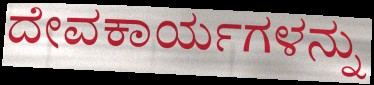
ದೇವಕಾರ್ಯಗಳನ್ನು